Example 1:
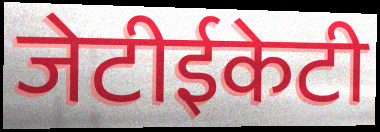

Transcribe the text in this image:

जेटीईकेटी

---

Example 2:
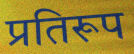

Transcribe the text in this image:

प्रतिरूप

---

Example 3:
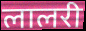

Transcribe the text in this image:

लालरी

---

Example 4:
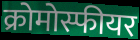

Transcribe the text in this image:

क्रोमोस्फीयर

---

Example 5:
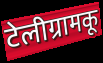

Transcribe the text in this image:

टेलीग्रामकू